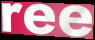
ree